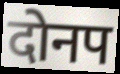
दोनप